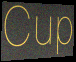
Cup